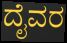
ದೈವರ